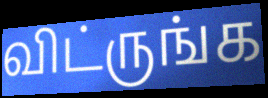
விட்ருங்க